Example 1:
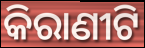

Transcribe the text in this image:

କିରାଣୀଟି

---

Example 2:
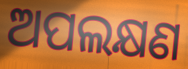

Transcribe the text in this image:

ଅପଲକ୍ଷଣ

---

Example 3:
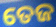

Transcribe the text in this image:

ତେଜ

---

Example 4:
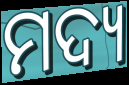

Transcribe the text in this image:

ମଦ୍ଯ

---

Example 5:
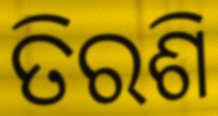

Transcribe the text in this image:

ତିରଶି